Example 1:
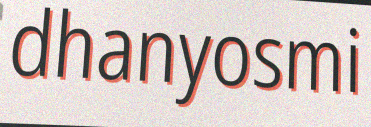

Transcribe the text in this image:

dhanyosmi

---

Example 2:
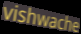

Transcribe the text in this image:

vishwache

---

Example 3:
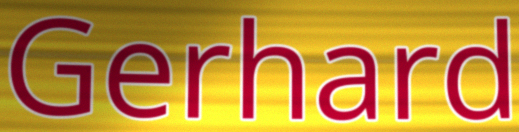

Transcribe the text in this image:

Gerhard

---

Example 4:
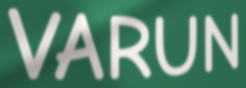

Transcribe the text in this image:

VARUN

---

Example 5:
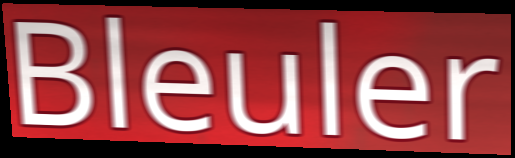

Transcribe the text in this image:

Bleuler